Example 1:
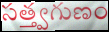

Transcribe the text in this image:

సత్త్వగుణం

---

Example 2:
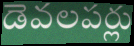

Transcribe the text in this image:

డెవలపర్లు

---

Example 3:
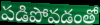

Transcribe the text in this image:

పడిపోవడంతో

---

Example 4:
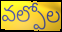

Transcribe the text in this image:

వల్పోల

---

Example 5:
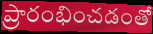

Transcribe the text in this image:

ప్రారంభించడంతో